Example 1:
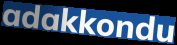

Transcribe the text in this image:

adakkondu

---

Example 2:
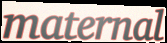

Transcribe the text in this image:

maternal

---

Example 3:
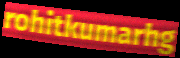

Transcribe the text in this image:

rohitkumarhg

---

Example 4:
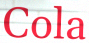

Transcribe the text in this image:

Cola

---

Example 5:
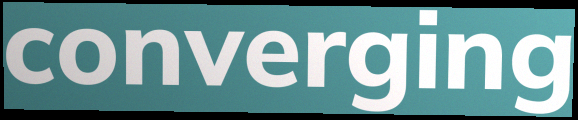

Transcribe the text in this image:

converging